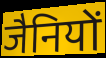
जैनियों